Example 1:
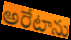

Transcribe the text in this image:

అరేటాను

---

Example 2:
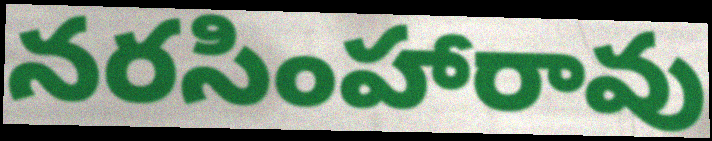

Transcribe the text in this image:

నరసింహారావు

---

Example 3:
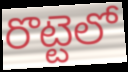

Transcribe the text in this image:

రొట్టెలో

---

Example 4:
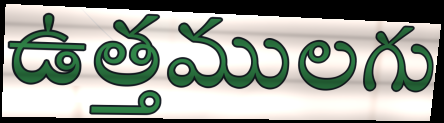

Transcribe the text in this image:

ఉత్తములగు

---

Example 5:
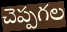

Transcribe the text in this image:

చెప్పగల